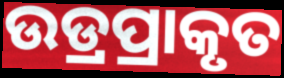
ଉଡ୍ରପ୍ରାକୃତ